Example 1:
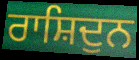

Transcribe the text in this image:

ਰਾਸ਼ਿਦੁਨ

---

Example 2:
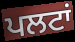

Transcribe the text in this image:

ਪਲਟਾਂ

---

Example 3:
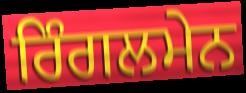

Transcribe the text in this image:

ਰਿੰਗਲਮੇਨ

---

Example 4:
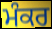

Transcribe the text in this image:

ਮੰਕਰ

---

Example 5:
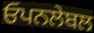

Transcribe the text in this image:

ਓਪਨਲੇਬਲ